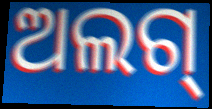
ଅଲଗ୍